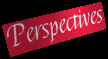
Perspectives